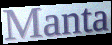
Manta